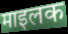
माइलक